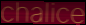
chalice